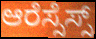
ಆರೆಸ್ಸೆಸ್ಸ್